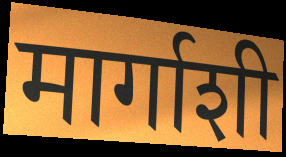
मार्गाशी